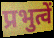
प्रभुत्वें